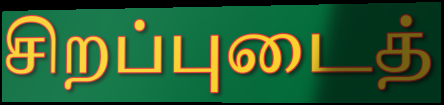
சிறப்புடைத்